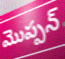
మొప్పన్